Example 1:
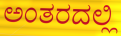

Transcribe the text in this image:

ಅಂತರದಲ್ಲಿ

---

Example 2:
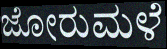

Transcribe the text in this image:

ಜೋರುಮಳೆ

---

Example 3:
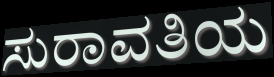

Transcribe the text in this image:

ಸುರಾವತಿಯ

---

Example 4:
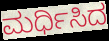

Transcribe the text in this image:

ಮರ್ಧಿಸಿದ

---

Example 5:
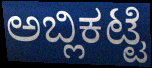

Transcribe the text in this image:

ಅಬ್ಲಿಕಟ್ಟೆ